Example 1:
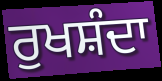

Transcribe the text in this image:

ਰੁਖਸ਼ੰਦਾ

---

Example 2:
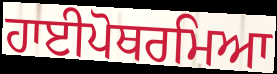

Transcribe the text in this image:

ਹਾਈਪੋਥਰਮਿਆ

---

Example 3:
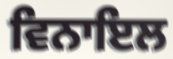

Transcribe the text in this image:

ਵਿਨਾਇਲ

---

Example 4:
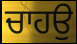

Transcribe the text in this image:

ਚਾਹਉ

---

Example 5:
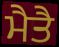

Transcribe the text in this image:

ਮੈਤੈ